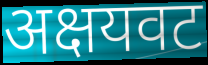
अक्षयवट